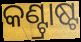
କଣ୍ଟ୍ରାଷ୍ଟ